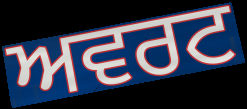
ਅਵਰਟ